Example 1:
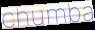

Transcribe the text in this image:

chumba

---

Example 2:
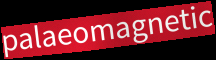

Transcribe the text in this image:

palaeomagnetic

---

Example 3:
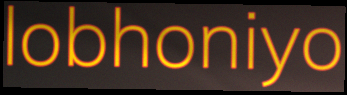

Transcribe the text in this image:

lobhoniyo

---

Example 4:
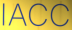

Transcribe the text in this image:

IACC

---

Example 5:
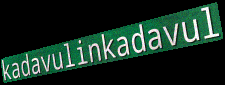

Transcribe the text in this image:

kadavulinkadavul